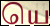
யெ